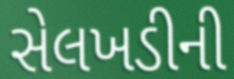
સેલખડીની